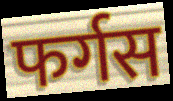
फर्गस